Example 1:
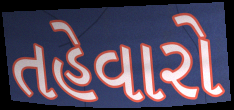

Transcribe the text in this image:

તહેવારો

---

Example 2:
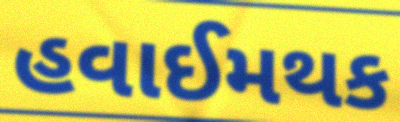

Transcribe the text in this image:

હવાઈમથક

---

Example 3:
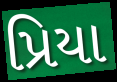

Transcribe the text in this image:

પ્રિયા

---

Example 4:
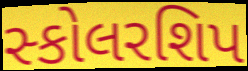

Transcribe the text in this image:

સ્કોલરશિપ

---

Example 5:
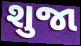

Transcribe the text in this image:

શુજા